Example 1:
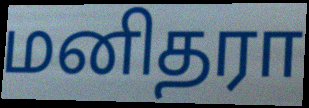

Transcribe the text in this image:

மனிதரா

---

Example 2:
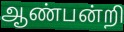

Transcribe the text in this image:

ஆண்பன்றி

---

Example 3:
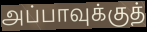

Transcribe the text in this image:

அப்பாவுக்குத்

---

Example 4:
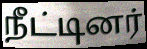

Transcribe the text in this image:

நீட்டினர்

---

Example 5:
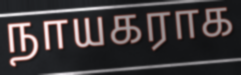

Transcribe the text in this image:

நாயகராக